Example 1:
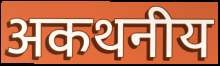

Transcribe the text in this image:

अकथनीय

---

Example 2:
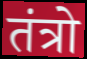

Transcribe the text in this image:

तंत्रो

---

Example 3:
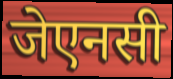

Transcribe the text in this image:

जेएनसी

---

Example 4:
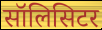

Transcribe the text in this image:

सॉलिसिटर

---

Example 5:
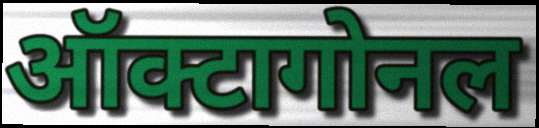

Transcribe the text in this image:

ऑक्टागोनल